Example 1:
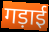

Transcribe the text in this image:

गड़ाई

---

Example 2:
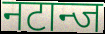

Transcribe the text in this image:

नटान्ज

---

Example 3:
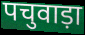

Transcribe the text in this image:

पचुवाड़ा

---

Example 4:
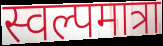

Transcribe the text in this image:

स्वल्पमात्रा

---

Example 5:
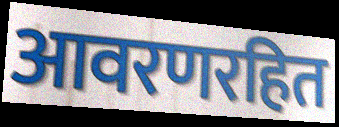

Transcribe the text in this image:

आवरणरहित